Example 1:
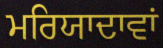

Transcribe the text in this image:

ਮਰਿਯਾਦਾਵਾਂ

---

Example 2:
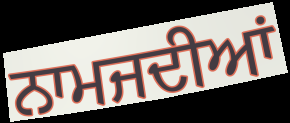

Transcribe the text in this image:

ਨਾਮਜਦੀਆਂ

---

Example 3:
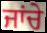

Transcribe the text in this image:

ਜਾਂਚੇ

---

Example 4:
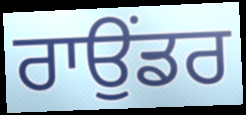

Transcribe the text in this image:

ਰਾਉਂਡਰ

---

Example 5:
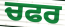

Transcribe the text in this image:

ਚਫਰ